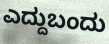
ಎದ್ದುಬಂದು